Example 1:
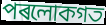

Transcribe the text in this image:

পৰলোকগত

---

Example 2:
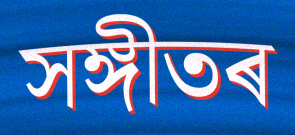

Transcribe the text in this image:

সঙ্গীতৰ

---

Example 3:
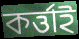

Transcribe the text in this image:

কৰ্ত্তাই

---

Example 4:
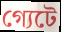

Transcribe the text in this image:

গ্যেটে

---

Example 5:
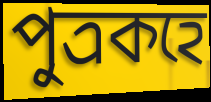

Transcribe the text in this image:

পুত্ৰকহে